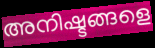
അനിഷ്ടങ്ങളെ